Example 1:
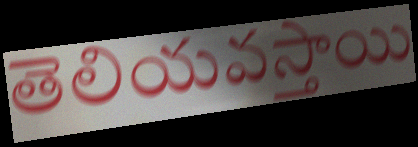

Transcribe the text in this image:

తెలియవస్తాయి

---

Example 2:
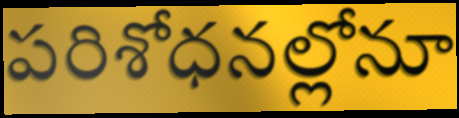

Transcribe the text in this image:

పరిశోధనల్లోనూ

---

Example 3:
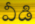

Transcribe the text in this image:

వీడి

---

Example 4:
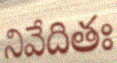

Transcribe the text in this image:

నివేదితః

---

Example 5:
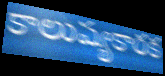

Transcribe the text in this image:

కాలుష్యకారక